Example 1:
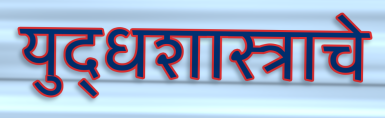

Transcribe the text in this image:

युद्धशास्त्राचे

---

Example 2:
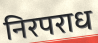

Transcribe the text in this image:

निरपराध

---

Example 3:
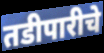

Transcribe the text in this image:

तडीपारीचे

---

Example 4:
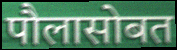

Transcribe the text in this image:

पौलासोबत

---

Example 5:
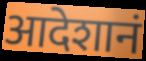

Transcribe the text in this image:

आदेशानं